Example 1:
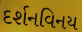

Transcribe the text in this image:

દર્શનવિનય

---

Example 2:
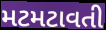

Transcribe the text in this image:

મટમટાવતી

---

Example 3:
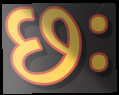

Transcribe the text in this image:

છઃ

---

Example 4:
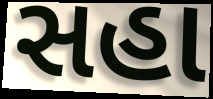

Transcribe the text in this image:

સહા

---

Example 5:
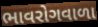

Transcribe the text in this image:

ભાવરોગવાળા